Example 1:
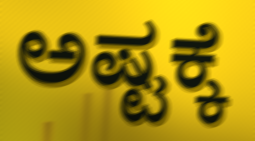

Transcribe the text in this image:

ಅಷ್ಟಕ್ಕೆ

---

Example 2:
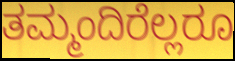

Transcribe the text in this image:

ತಮ್ಮಂದಿರೆಲ್ಲರೂ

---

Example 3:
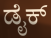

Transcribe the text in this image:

ಡೈಕ್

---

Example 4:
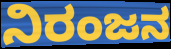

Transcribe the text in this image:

ನಿರಂಜನ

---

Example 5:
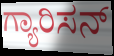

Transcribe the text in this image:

ಗ್ಯಾರಿಸನ್